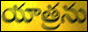
యాత్రను